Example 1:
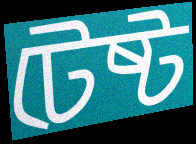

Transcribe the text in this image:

টেষ্ট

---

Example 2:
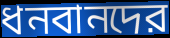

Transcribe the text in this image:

ধনবানদের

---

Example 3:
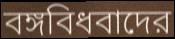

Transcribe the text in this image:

বঙ্গবিধবাদের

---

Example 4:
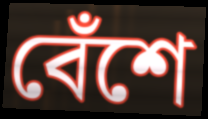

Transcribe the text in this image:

বেঁশে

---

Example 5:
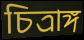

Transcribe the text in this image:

চিত্রাঙ্গ